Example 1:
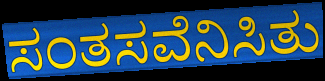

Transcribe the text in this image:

ಸಂತಸವೆನಿಸಿತು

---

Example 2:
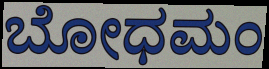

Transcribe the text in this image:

ಬೋಧಮಂ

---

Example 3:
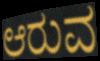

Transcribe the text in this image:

ಆರುವ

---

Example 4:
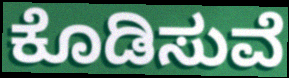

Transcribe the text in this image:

ಕೊಡಿಸುವೆ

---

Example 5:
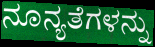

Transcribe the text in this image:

ನೂನ್ಯತೆಗಳನ್ನು